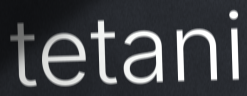
tetani